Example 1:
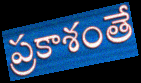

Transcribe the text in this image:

ప్రకాశంతే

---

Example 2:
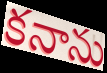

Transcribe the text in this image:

కనాను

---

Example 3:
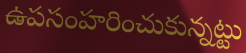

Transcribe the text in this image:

ఉపసంహరించుకున్నట్టు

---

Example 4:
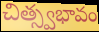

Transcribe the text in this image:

చిత్స్వభావం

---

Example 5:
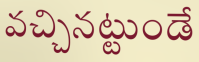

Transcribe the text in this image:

వచ్చినట్టుండే